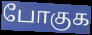
போகுக